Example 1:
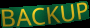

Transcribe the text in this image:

BACKUP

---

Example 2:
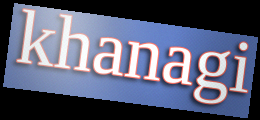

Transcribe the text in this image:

khanagi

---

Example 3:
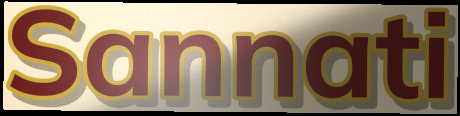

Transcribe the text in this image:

Sannati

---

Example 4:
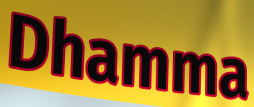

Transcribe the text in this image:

Dhamma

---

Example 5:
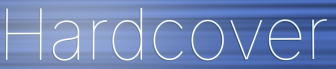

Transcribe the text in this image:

Hardcover